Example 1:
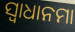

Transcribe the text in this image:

ସ୍ଵାଧାନମା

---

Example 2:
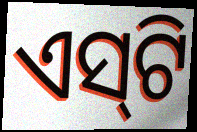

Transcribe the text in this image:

ଏସ୍‌ଟି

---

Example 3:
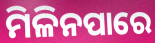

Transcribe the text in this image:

ମିଳିନପାରେ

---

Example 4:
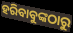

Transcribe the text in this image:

ହରିବାବୁଙ୍କଠାରୁ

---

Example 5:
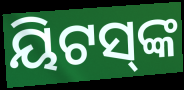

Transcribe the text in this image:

ୟିଟସ୍‌ଙ୍କ